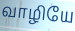
வாழியே